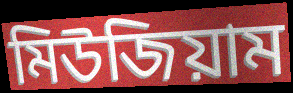
মিউজিয়াম